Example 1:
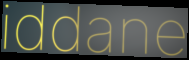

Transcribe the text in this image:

iddane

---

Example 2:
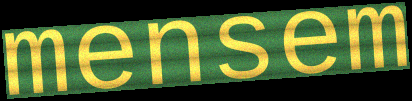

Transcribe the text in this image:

mensem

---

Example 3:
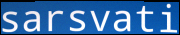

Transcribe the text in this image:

sarsvati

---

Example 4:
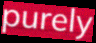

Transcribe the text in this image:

purely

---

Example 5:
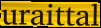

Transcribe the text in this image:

uraittal